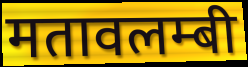
मतावलम्बी